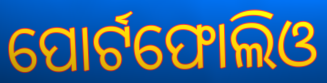
ପୋର୍ଟଫୋଲିଓ